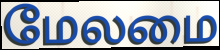
மேலமை